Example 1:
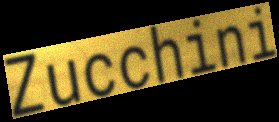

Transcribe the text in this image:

Zucchini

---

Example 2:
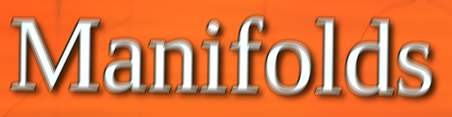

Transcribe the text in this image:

Manifolds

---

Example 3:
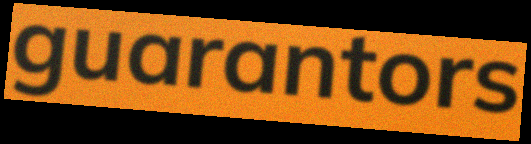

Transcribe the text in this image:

guarantors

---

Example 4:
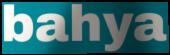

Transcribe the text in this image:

bahya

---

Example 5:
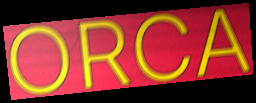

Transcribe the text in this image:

ORCA